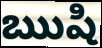
ఋషి